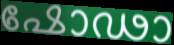
ഷോഢാ